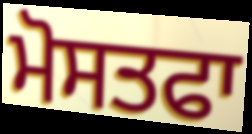
ਮੋਸਤਫਾ